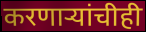
करणाऱ्यांचीही